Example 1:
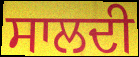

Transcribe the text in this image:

ਸਾਲਦੀ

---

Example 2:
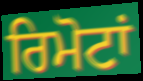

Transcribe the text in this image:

ਰਿਮੋਟਾਂ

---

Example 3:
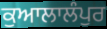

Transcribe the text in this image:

ਕੁਆਲਾਲੰਪੁਰ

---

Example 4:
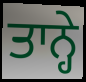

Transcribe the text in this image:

ਤਾਨ੍ਹੇ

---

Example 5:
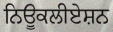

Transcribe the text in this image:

ਨਿਊਕਲੀਏਸ਼ਨ